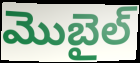
మొబైల్